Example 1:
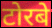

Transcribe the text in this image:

टोरबे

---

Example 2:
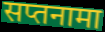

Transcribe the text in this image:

सप्तनामा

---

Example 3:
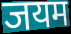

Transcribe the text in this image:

जयम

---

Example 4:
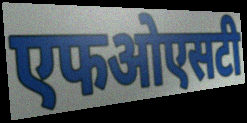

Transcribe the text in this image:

एफओएसटी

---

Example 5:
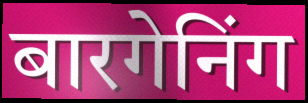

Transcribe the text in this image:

बारगेनिंग